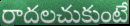
రాదలచుకుంటే